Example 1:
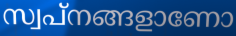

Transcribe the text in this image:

സ്വപ്നങ്ങളാണോ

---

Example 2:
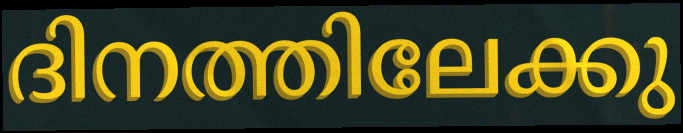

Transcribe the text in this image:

ദിനത്തിലേക്കു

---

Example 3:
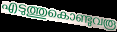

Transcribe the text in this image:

എടുത്തുകൊണ്ടുവരൂ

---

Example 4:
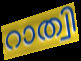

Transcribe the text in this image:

റാത്വി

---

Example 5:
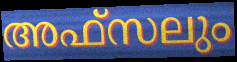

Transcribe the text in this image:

അഫ്സലും